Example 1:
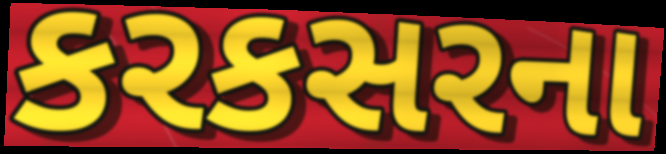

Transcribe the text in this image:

કરકસરના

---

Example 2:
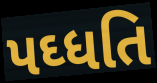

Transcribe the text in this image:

પઘ્ધતિ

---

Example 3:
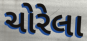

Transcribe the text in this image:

ચોરેલા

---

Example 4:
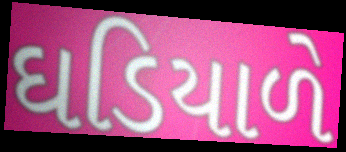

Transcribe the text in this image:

ઘડિયાળે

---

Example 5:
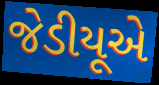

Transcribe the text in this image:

જેડીયૂએ